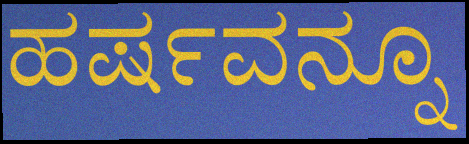
ಹರ್ಷವನ್ನೂ